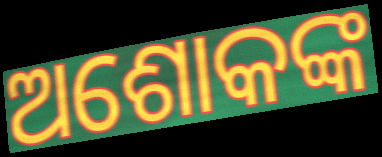
ଅଶୋକଙ୍କ